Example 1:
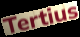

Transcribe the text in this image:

Tertius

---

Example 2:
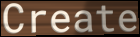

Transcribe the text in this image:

Create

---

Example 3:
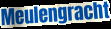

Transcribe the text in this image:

Meulengracht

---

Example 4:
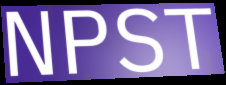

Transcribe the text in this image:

NPST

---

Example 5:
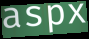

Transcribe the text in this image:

aspx